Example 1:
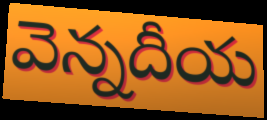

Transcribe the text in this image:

వెన్నదీయ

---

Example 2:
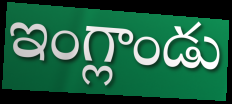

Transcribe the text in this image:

ఇంగ్లాండు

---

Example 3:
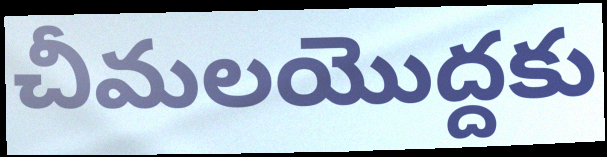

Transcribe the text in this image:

చీమలయొద్దకు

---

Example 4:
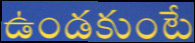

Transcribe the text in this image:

ఉండకుంటే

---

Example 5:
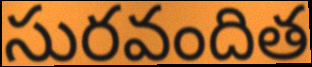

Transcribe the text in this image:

సురవందిత